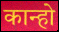
कान्हो